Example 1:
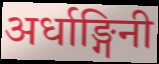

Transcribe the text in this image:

अर्धाङ्गिनी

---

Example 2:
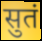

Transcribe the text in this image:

सुतं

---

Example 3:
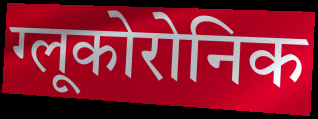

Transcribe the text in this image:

ग्लूकोरोनिक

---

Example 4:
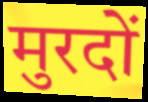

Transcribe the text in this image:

मुरदों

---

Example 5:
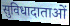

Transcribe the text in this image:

सुविधादाताओं